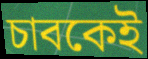
চাবকেই